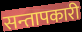
सन्तापकारी